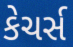
કેચર્સ